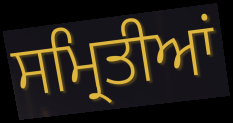
ਸਮ੍ਰਿਤੀਆਂ